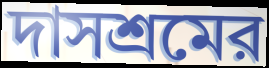
দাসশ্রমের